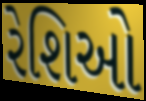
રેશિઓ